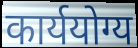
कार्ययोग्य